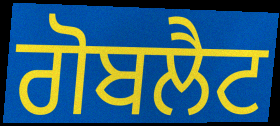
ਗੋਬਲੈਟ